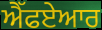
ਐੱਫਏਆਰ